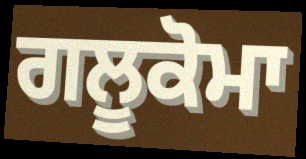
ਗਲੂਕੋਮਾ